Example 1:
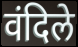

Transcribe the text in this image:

वंदिले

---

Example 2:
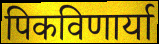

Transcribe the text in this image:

पिकविणार्या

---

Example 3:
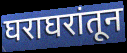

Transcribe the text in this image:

घराघरांतून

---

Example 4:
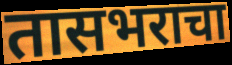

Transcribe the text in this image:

तासभराचा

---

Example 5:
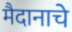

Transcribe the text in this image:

मैदानाचे